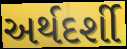
અર્થદર્શી